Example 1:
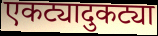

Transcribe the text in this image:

एकट्यादुकट्या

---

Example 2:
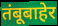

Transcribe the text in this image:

तंबूबाहेर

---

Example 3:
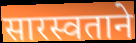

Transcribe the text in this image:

सारस्वताने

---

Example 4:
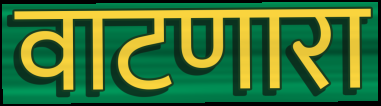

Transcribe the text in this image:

वाटणारा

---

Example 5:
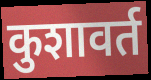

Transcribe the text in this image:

कुशावर्त